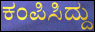
ಕಂಪಿಸಿದ್ದು